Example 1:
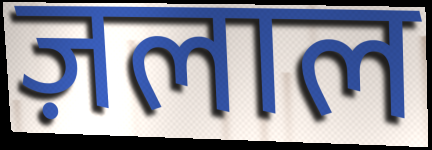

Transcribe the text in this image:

ज़लाल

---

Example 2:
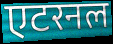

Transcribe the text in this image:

एटरनल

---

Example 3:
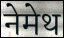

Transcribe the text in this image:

नेमेथ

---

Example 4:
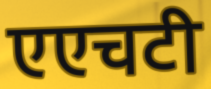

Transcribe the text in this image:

एएचटी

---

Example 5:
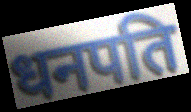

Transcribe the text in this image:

धनपति